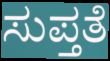
ಸುಪ್ತತೆ